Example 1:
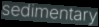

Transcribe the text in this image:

sedimentary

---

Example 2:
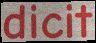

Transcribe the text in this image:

dicit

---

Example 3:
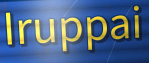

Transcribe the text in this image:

Iruppai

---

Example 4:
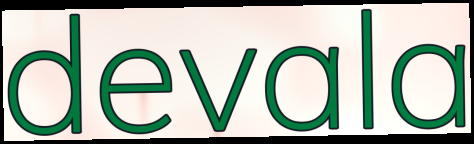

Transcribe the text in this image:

devala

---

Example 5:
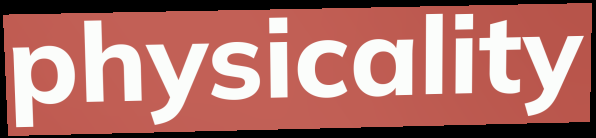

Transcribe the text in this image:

physicality